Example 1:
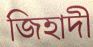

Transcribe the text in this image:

জিহাদী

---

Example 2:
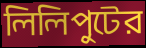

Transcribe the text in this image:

লিলিপুটের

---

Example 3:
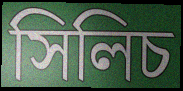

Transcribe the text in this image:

সিলিচ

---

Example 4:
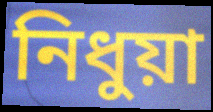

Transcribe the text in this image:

নিধুয়া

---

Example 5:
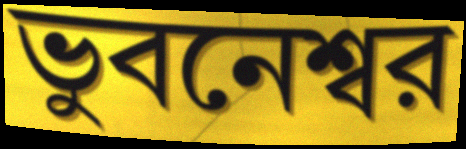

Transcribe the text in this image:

ভুবনেশ্বর